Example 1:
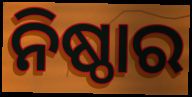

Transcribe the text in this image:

ନିଷ୍ଠାର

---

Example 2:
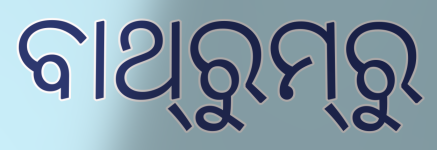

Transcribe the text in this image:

ବାଥ୍‌ରୁମ୍‌ରୁ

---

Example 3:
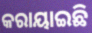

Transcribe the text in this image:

କରାୟାଇଛି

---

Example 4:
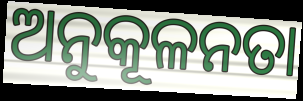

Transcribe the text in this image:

ଅନୁକୂଳନତା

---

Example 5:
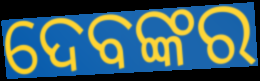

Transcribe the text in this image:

ଦେବଙ୍କର